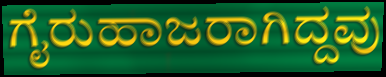
ಗೈರುಹಾಜರಾಗಿದ್ದವು